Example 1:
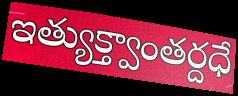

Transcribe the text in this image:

ఇత్యుక్త్వాంతర్దధే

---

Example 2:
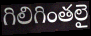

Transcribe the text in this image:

గిలిగింతలై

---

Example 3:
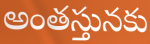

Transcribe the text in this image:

అంతస్తునకు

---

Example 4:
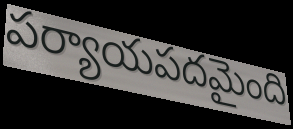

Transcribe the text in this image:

పర్యాయపదమైంది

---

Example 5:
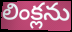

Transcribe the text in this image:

లింక్లను